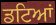
ਡਟਿਆਂ